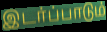
இடர்ப்பாடும்